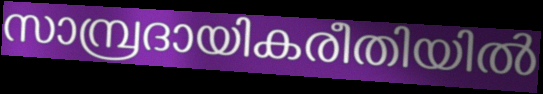
സാമ്പ്രദായികരീതിയിൽ